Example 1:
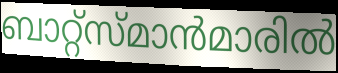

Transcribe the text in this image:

ബാറ്റ്സ്മാൻമാരിൽ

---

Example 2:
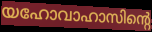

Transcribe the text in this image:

യഹോവാഹാസിന്റെ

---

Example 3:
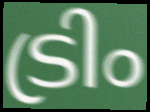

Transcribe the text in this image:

ട്രിം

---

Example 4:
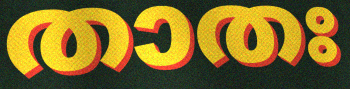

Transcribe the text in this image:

താതഃ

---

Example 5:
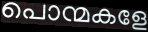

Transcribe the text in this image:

പൊന്മകളേ